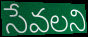
సేవలని